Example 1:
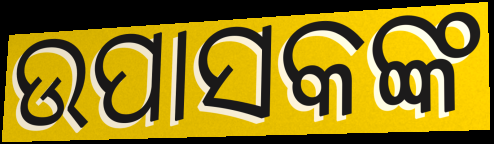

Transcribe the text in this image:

ଉପାସକଙ୍କ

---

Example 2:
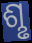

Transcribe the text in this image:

ଶୢ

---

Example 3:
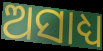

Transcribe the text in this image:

ଅସାଧ୍ୟ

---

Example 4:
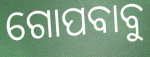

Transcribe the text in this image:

ଗୋପବାବୁ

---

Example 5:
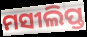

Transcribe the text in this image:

ମସୀଲିପ୍ତ